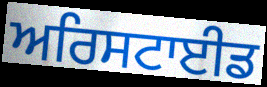
ਅਰਿਸਟਾਈਡ